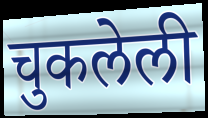
चुकलेली